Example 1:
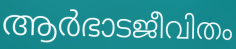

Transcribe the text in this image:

ആർഭാടജീവിതം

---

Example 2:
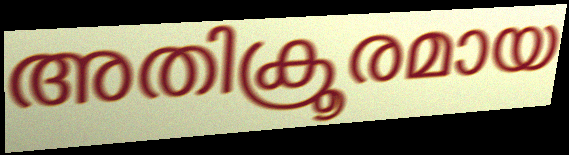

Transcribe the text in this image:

അതിക്രൂരമായ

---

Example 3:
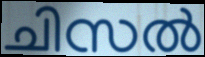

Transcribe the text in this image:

ചിസൽ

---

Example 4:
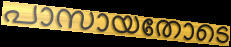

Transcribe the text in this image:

പാസായതോടെ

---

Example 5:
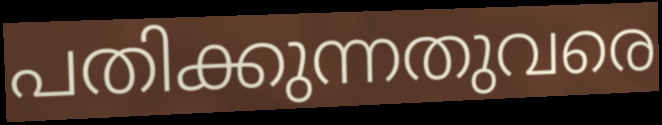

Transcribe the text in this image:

പതിക്കുന്നതുവരെ